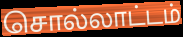
சொல்லாட்டம்